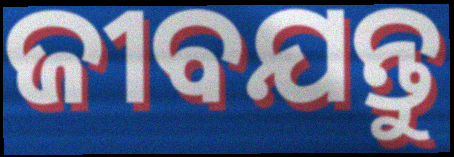
ଜୀବଯନ୍ତୁ